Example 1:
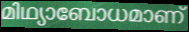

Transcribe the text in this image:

മിഥ്യാബോധമാണ്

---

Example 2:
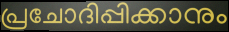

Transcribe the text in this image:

പ്രചോദിപ്പിക്കാനും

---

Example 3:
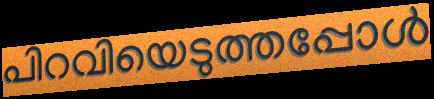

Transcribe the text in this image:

പിറവിയെടുത്തപ്പോൾ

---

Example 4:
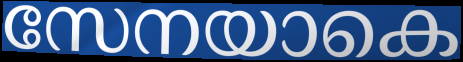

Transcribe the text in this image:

സേനയാകെ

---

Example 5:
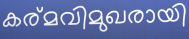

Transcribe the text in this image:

കര്മവിമുഖരായി